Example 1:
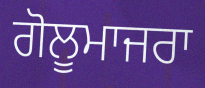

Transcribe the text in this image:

ਗੋਲੂਮਾਜਰਾ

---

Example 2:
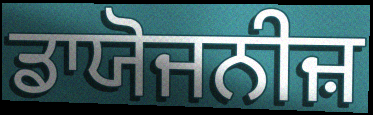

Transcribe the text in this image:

ਡਾਯੋਜਨੀਜ਼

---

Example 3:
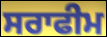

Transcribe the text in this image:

ਸਰਾਫੀਮ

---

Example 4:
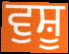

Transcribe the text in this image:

ਵੁਸ਼ੂ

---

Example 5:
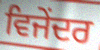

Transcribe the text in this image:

ਵਿਜੇਂਦਰ